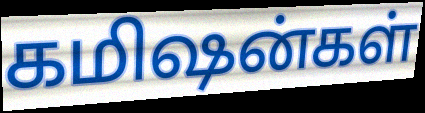
கமிஷன்கள்